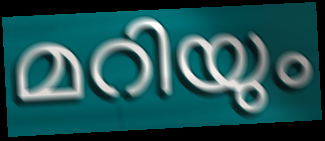
മറിയും